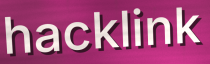
hacklink